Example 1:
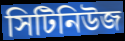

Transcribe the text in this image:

সিটিনিউজ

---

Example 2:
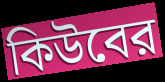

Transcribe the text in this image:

কিউবের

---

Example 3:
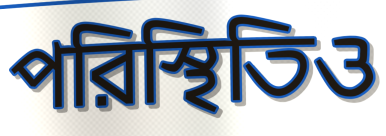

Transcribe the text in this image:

পরিস্থিতিও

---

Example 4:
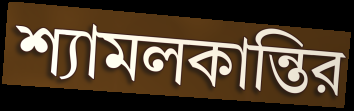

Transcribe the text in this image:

শ্যামলকান্তির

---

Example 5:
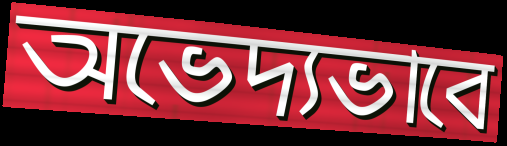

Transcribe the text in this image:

অভেদ্যভাবে